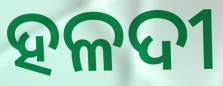
ହଳଦୀ